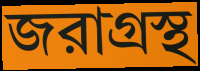
জরাগ্রস্থ